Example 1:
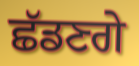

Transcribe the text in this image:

ਛੱਡਣਗੇ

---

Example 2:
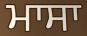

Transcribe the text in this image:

ਮਾਸਾ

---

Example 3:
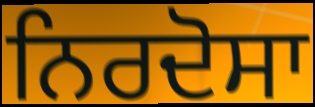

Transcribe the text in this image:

ਨਿਰਦੋਸਾ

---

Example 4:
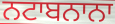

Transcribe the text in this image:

ਨਟਾਬਨਾਨਾ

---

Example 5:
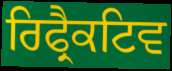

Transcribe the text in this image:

ਰਿਫ੍ਰੈਕਟਿਵ